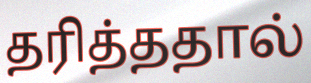
தரித்ததால்